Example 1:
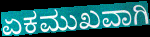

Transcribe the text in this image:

ಏಕಮುಖವಾಗಿ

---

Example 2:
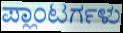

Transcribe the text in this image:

ಪ್ಲಾಂಟರ್ಗಳು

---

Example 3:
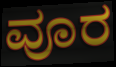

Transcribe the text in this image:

ವೂರ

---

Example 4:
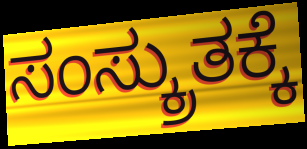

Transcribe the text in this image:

ಸಂಸ್ಕ್ರುತಕ್ಕೆ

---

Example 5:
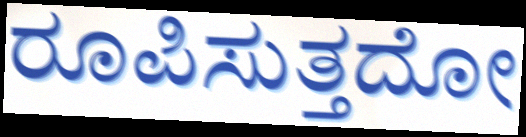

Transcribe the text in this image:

ರೂಪಿಸುತ್ತದೋ